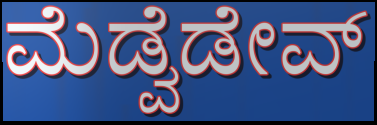
ಮೆಡ್ವೆಡೇವ್